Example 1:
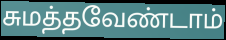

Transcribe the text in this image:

சுமத்தவேண்டாம்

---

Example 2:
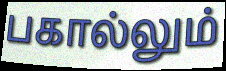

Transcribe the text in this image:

பகால்லும்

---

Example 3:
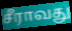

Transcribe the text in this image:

சீராவது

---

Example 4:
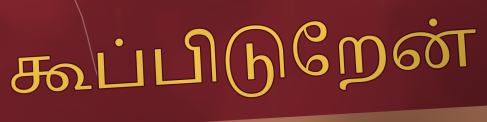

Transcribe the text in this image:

கூப்பிடுறேன்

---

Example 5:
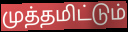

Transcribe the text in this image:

முத்தமிட்டும்